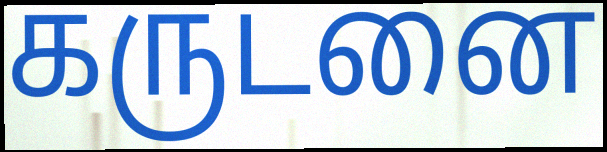
கருடனை